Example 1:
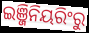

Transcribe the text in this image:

ଇଞ୍ଜିନିୟରିଂରୁ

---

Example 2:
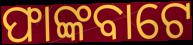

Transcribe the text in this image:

ଫାଙ୍କବାଟେ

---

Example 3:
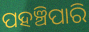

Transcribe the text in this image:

ପହଞ୍ଚିପାରି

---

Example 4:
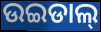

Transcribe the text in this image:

ଉଇଡାଲ୍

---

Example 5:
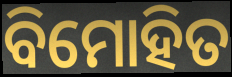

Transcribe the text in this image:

ବିମୋହିତ